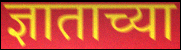
ज्ञाताच्या